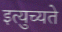
इत्युच्यते